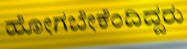
ಹೋಗಬೇಕೆಂದಿದ್ದರು